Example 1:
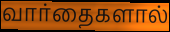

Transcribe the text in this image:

வார்தைகளால்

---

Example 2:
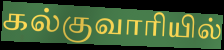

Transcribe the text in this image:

கல்குவாரியில்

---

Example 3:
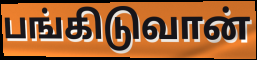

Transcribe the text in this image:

பங்கிடுவான்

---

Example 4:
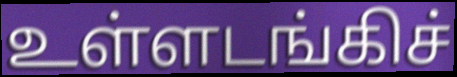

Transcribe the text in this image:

உள்ளடங்கிச்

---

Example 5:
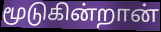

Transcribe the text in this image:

மூடுகின்றான்